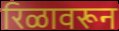
रिळावरून